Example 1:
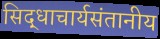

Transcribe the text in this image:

सिद्धाचार्यसंतानीय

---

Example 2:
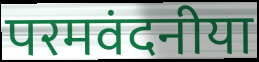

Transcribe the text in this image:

परमवंदनीया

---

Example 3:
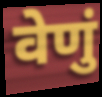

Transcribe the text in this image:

वेणुं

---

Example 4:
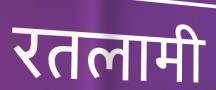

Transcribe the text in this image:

रतलामी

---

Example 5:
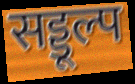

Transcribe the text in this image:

सड्डूल्प